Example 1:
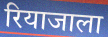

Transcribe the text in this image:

रियाजाला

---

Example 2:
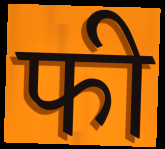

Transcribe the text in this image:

फी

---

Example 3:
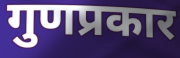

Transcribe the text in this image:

गुणप्रकार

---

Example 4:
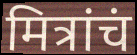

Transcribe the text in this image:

मित्रांचं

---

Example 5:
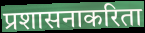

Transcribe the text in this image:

प्रशासनाकरिता